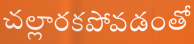
చల్లారకపోవడంతో